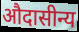
औदासीन्य